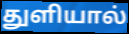
துளியால்